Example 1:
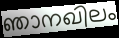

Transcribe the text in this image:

ഞാനഖിലം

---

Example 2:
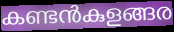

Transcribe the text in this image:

കണ്ടൻകുളങ്ങര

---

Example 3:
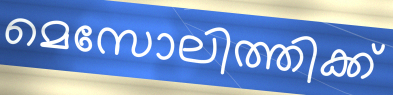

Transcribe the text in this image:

മെസോലിത്തിക്ക്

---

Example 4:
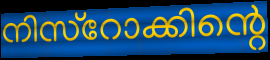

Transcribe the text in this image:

നിസ്റോക്കിന്റെ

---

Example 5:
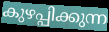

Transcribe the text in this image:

കുഴപ്പിക്കുന്ന